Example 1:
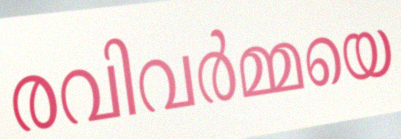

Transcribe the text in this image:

രവിവർമ്മയെ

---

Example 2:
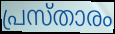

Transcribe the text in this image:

പ്രസ്താരം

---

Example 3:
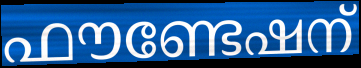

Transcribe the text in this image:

ഫൗണ്ടേഷന്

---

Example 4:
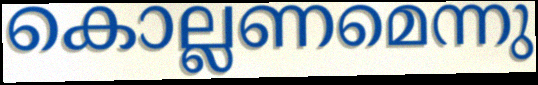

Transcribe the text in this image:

കൊല്ലണമെന്നു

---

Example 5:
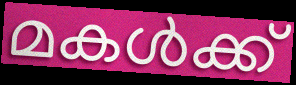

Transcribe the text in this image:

മകൾക്ക്